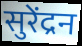
सुरेंद्रन